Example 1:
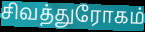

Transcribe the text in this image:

சிவத்துரோகம்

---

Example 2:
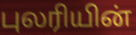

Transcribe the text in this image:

புலரியின்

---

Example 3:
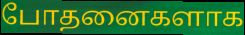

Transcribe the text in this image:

போதனைகளாக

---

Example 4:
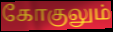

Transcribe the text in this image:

கோகுலும்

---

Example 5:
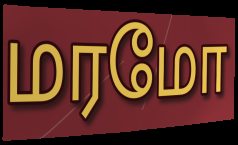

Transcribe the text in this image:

மரமோ